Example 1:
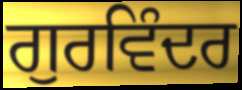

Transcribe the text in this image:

ਗੁਰਵਿੰਦਰ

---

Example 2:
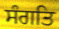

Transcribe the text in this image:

ਸੰਗਤਿ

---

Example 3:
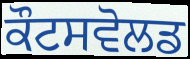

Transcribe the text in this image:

ਕੌਟਸਵੋਲਡ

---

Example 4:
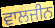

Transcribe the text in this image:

ਵਾਲਜੀਨ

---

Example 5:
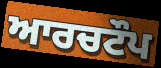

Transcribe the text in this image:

ਆਰਚਟੌਪ